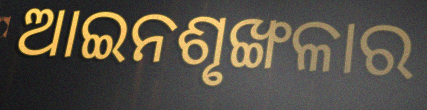
ଆଇନଶୃଙ୍ଖଳାର